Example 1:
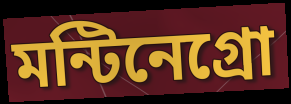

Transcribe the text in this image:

মন্টিনেগ্রো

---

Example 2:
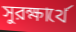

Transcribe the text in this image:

সুরক্ষার্থে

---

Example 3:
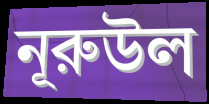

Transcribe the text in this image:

নূরুউল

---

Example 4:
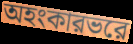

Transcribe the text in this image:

অহংকারভরে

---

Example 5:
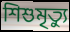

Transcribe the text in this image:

শিশুমৃত্যু